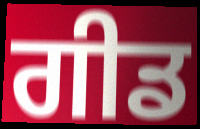
ਗੀਡ